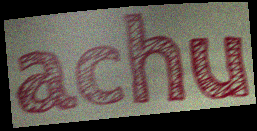
achu